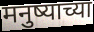
मनुष्याच्या